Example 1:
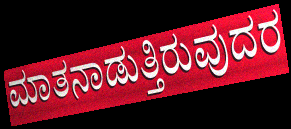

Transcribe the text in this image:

ಮಾತನಾಡುತ್ತಿರುವುದರ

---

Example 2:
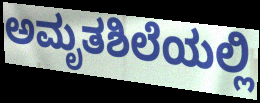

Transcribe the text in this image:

ಅಮೃತಶಿಲೆಯಲ್ಲಿ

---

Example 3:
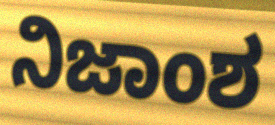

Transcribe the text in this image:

ನಿಜಾಂಶ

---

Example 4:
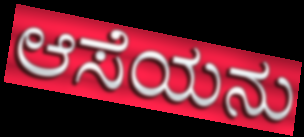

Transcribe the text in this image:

ಆಸೆಯನು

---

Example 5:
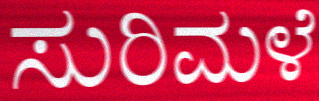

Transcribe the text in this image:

ಸುರಿಮಳೆ